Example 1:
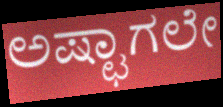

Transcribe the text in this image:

ಅಷ್ಟಾಗಲೇ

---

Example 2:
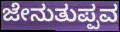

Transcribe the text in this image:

ಜೇನುತುಪ್ಪವ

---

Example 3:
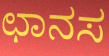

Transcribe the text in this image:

ಛಾನಸ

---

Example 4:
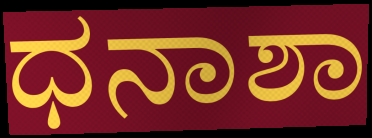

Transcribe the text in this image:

ಧನಾಶಾ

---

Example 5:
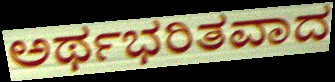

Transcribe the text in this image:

ಅರ್ಥಭರಿತವಾದ